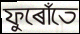
ফুৰোঁতে